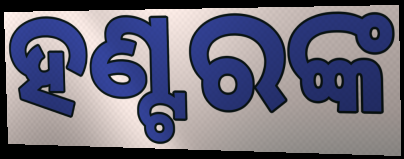
ହଣ୍ଟରଙ୍କ